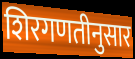
शिरगणतीनुसार